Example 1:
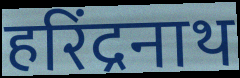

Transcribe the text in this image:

हरिंद्रनाथ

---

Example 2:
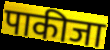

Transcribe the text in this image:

पाकीजा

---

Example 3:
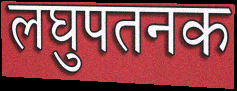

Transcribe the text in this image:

लघुपतनक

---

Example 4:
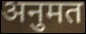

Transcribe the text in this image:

अनुमत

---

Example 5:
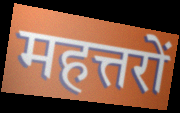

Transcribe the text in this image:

महत्तरों